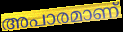
അപാരമാണ്